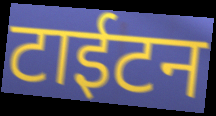
टाईटन